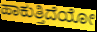
ಹಾಕುತ್ತಿದೆಯೋ